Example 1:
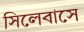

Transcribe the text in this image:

সিলেবাসে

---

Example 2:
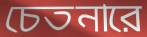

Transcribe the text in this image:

চেতনারে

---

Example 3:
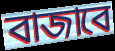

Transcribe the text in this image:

বাজাবে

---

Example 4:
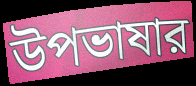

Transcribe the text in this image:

উপভাষার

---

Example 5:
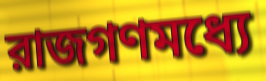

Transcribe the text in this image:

রাজগণমধ্যে